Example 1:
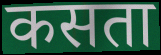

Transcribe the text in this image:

कसता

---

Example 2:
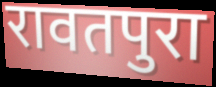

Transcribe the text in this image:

रावतपुरा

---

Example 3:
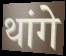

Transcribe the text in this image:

थांगे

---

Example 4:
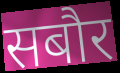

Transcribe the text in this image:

सबौर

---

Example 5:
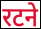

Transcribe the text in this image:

रटने